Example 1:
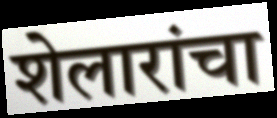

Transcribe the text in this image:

शेलारांचा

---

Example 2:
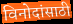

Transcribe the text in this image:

विनोदांसाठी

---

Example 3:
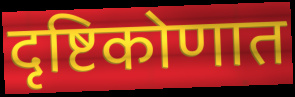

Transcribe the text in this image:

दृष्टिकोणात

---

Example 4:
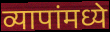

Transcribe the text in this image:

व्यापांमध्ये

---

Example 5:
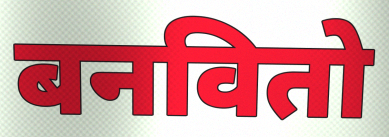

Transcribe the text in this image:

बनवितो